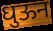
धुऊन